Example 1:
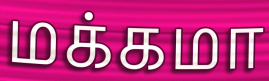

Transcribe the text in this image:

மக்கமா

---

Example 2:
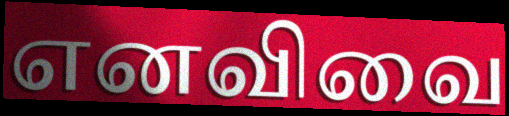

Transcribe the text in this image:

எனவிவை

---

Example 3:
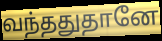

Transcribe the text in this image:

வந்ததுதானே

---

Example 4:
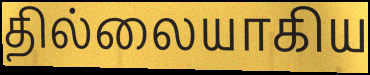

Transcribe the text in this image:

தில்லையாகிய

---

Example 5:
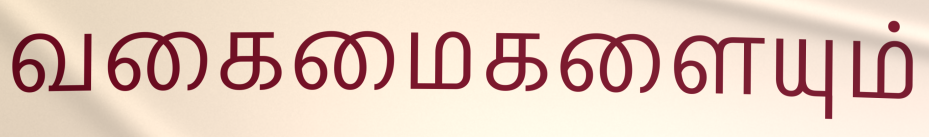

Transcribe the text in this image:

வகைமைகளையும்